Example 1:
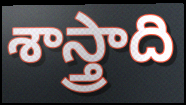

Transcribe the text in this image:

శాస్త్రాది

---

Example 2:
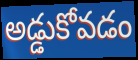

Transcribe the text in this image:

అడ్డుకోవడం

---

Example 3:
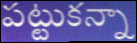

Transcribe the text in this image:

పట్టుకన్నా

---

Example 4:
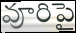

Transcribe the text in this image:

వూరిపై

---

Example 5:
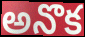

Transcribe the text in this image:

అనొక